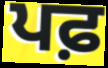
ਪਫ਼